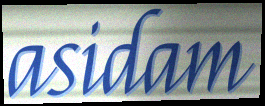
asidam